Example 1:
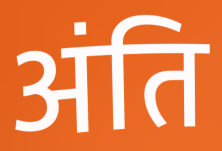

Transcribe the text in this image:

अंति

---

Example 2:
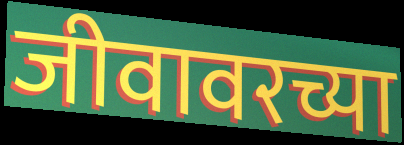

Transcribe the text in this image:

जीवावरच्या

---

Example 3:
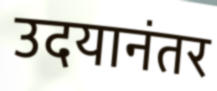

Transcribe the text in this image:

उदयानंतर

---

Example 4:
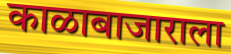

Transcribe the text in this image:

काळाबाजाराला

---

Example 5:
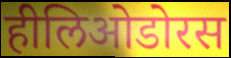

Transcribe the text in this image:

हीलिओडोरस